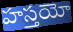
హస్తయో